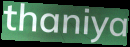
thaniya